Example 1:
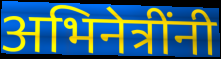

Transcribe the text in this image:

अभिनेत्रींनी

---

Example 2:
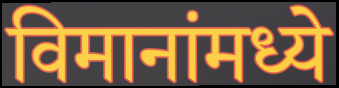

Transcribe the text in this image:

विमानांमध्ये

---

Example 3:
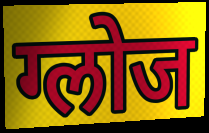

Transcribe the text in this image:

ग्लोज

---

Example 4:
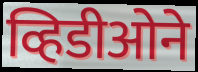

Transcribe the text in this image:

व्हिडीओने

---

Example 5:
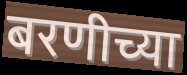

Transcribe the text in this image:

बरणीच्या